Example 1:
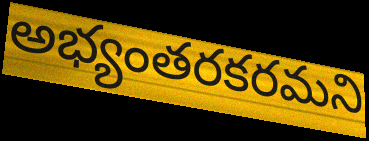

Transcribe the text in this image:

అభ్యంతరకరమని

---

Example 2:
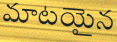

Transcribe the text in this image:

మాటయైన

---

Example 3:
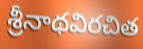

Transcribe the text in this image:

శ్రీనాథవిరచిత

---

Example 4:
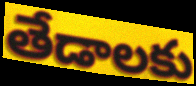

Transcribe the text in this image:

తేడాలకు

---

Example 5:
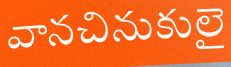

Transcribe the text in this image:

వానచినుకులై